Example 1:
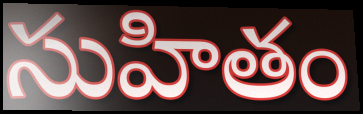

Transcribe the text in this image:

సుహితం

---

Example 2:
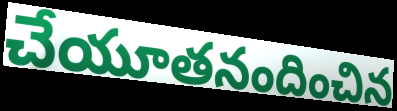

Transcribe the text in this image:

చేయూతనందించిన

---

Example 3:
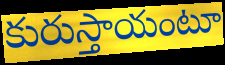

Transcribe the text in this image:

కురుస్తాయంటూ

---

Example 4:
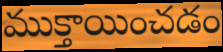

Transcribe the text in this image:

ముక్తాయించడం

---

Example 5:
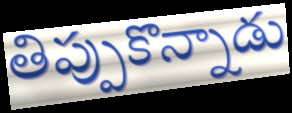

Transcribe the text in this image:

తిప్పుకొన్నాడు